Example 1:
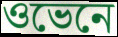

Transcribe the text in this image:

ওভেনে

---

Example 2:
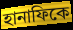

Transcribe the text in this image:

হানাফিকে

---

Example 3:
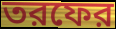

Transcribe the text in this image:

তরফের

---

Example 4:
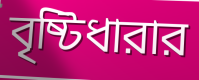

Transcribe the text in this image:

বৃষ্টিধারার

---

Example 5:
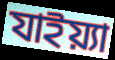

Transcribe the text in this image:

যাইয়্যা